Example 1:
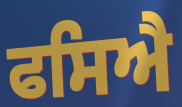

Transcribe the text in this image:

ਫਸਿਐ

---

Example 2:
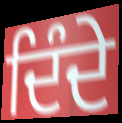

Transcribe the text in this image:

ਦਿੰਦੇ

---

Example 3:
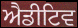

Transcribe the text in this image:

ਐਡੀਟਿਵ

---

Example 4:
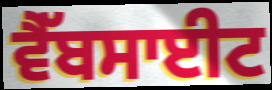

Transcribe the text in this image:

ਵੈੱਬਸਾਈਟ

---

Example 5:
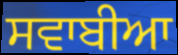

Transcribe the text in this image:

ਸਵਾਬੀਆ